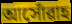
আসোঁৱাহ